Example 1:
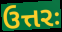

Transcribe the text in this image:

ઉત્તરઃ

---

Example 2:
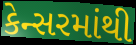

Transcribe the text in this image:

કેન્સરમાંથી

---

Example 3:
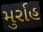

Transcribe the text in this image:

મુર્રાહ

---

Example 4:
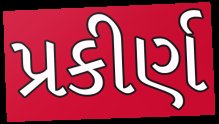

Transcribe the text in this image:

પ્રકીર્ણ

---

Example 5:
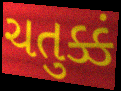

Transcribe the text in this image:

ચતુક્કં